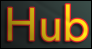
Hub